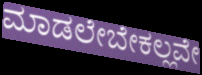
ಮಾಡಲೇಬೇಕಲ್ಲವೇ